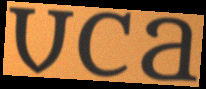
uca